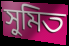
সুমিত